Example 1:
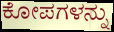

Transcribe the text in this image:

ಕೋಪಗಳನ್ನು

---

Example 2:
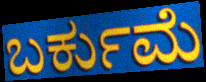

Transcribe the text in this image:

ಬರ್ಕುಮೆ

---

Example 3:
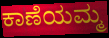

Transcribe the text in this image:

ಕಾಣೆಯಮ್ಮ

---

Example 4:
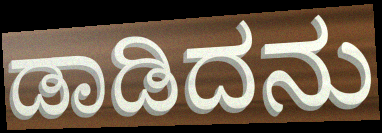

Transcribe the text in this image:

ಡಾಡಿದನು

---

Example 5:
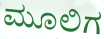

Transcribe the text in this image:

ಮೂಲಿಗ